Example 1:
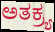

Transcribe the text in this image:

ಅತಕ್ರ್ಯ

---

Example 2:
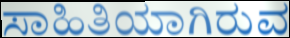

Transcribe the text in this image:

ಸಾಹಿತಿಯಾಗಿರುವ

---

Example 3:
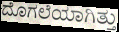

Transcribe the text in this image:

ದೊಗಲೆಯಾಗಿತ್ತು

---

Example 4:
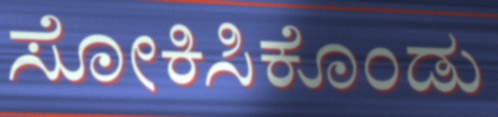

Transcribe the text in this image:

ಸೋಕಿಸಿಕೊಂಡು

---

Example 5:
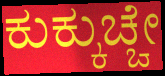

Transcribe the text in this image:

ಕುಕ್ಕುಚ್ಚೇ